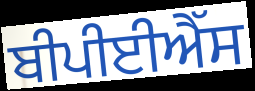
ਬੀਪੀਈਐੱਸ